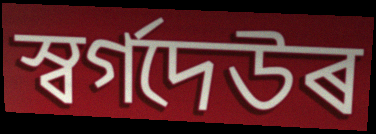
স্বৰ্গদেউৰ